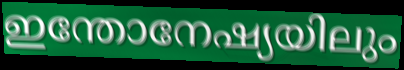
ഇന്തോനേഷ്യയിലും